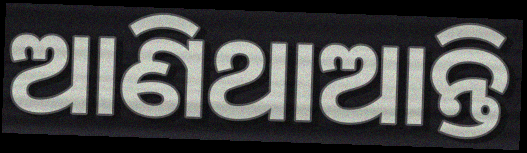
ଆଣିଥାଆନ୍ତି